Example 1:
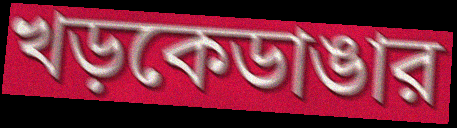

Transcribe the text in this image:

খড়কেডাঙার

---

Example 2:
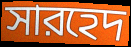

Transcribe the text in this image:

সারহেদ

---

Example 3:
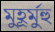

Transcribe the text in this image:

মুহূর্মুহু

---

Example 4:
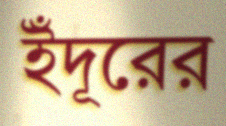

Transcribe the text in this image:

ইঁদূরের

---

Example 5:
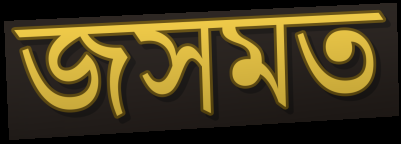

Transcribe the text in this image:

জসমত